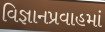
વિજ્ઞાનપ્રવાહમાં